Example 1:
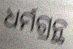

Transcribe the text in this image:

ଧର୍ମଗ୍ରନ୍ଥ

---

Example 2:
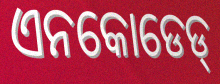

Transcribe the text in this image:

ଏନକୋଡେଡ୍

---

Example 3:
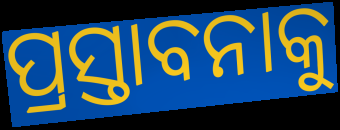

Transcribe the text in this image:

ପ୍ରସ୍ତାବନାକୁ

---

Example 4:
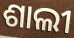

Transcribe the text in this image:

ଶାଲୀ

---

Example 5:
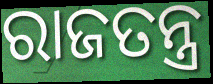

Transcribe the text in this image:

ରାଜତନ୍ତ୍ର